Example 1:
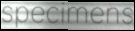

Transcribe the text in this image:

specimens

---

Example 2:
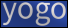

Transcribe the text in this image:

yogo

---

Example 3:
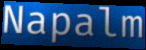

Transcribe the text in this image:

Napalm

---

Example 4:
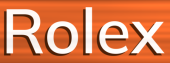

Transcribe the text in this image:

Rolex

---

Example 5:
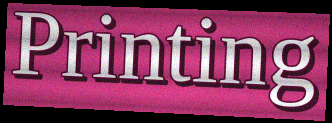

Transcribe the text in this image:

Printing